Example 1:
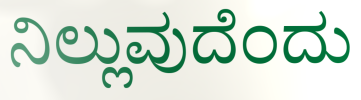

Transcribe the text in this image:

ನಿಲ್ಲುವುದೆಂದು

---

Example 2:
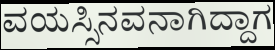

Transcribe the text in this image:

ವಯಸ್ಸಿನವನಾಗಿದ್ದಾಗ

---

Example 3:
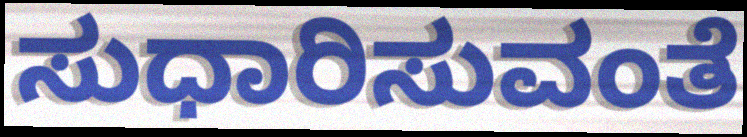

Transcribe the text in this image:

ಸುಧಾರಿಸುವಂತೆ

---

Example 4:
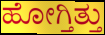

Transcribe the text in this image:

ಹೋಗ್ತಿತ್ತು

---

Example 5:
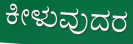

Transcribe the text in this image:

ಕೀಳುವುದರ